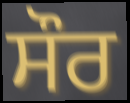
ਸੌਰ